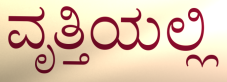
ವೃತ್ತಿಯಲ್ಲಿ